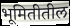
भूमितीतील